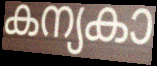
കന്യകാ